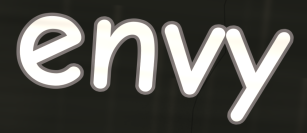
envy